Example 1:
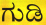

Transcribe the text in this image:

ಗುಡಿ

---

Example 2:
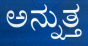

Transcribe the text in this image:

ಅನ್ನುತ್ತ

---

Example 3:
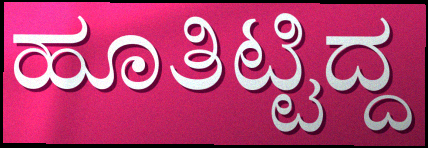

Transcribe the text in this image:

ಹೂತಿಟ್ಟಿದ್ದ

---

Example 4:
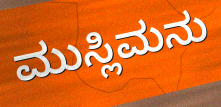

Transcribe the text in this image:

ಮುಸ್ಲಿಮನು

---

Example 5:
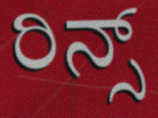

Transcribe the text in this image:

ರಿನ್ಸ್